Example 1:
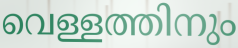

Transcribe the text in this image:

വെള്ളത്തിനും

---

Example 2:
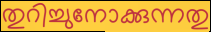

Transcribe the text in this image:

തുറിച്ചുനോക്കുന്നതു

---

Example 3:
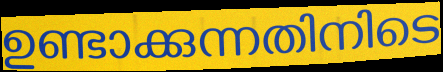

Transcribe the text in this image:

ഉണ്ടാക്കുന്നതിനിടെ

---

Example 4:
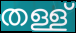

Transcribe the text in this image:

തള്ള്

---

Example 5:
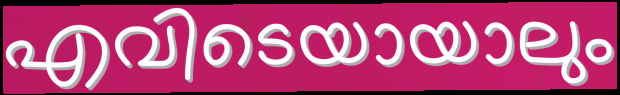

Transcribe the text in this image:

എവിടെയായാലും